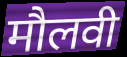
मौलवी